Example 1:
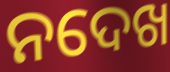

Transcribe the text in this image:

ନଦେଖ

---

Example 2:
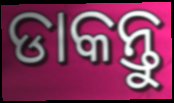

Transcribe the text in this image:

ଡାକନ୍ତୁ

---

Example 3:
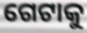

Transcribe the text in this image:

ଗେଟାକୁ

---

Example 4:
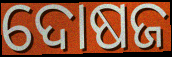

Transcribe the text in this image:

ଦୋଷଜ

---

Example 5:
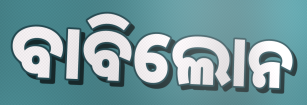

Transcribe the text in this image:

ବାବିଲୋନ